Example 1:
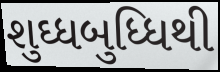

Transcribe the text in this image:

શુઘ્ધબુધ્ધિથી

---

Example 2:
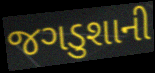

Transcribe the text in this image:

જગડુશાની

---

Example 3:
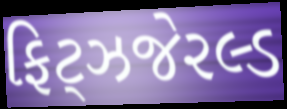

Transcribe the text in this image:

ફિટ્ઝજેરલ્ડ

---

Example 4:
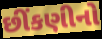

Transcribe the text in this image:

છીંકણીનો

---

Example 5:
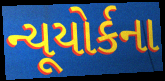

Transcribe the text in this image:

ન્યૂયોર્કના